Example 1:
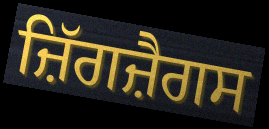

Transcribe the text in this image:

ਜ਼ਿੱਗਜ਼ੈਗਸ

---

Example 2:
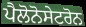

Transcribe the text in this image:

ਪੈਲੋਨੋਸੇਟਰੋਨ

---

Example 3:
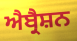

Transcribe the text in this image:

ਐਬ੍ਰੈਸ਼ਨ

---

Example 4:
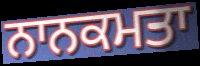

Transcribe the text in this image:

ਨਾਨਕਮਤਾ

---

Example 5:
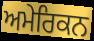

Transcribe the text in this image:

ਅਮੇਰਿਕਨ